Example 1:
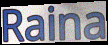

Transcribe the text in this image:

Raina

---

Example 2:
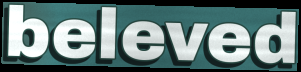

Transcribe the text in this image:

beleved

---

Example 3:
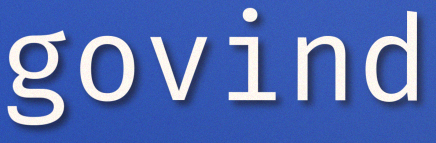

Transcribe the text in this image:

govind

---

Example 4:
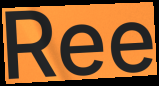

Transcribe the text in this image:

Ree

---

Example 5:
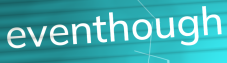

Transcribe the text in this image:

eventhough